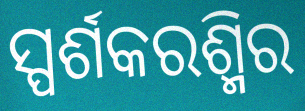
ସ୍ପର୍ଶକରଶ୍ମିର